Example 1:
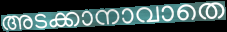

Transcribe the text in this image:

അടക്കാനാവാതെ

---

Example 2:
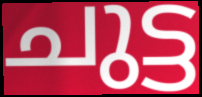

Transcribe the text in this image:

ചുട്ട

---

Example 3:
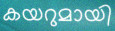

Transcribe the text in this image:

കയറുമായി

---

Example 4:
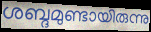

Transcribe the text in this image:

ശബ്ദമുണ്ടായിരുന്നു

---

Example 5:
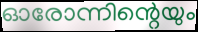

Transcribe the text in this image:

ഓരോന്നിന്റെയും